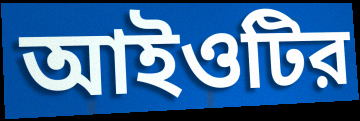
আইওটির